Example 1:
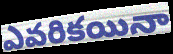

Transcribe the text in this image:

ఎవరికయినా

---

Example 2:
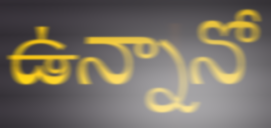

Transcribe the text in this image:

ఉన్నానో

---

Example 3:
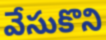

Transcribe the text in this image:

వేసుకొని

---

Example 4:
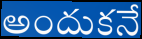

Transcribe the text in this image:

అందుకనే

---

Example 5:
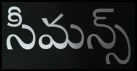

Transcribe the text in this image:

సీమన్స్